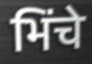
भिंचे